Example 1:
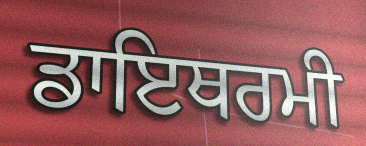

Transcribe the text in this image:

ਡਾਇਥਰਮੀ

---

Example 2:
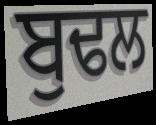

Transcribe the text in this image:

ਬੁਢਲ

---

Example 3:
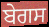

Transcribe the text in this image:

ਬੇਗਸ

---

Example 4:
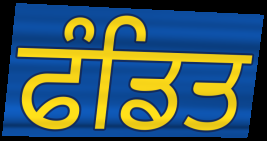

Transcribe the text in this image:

ਫੰਡਿਤ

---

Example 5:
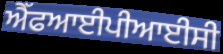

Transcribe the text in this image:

ਐੱਫਆਈਪੀਆਈਸੀ